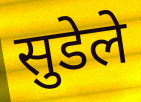
सुडेले